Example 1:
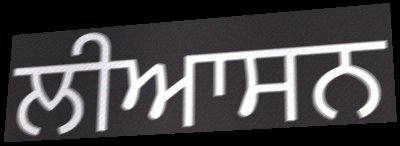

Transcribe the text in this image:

ਲੀਆਸਨ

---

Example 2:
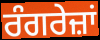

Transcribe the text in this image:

ਰੰਗਰੇਜ਼ਾਂ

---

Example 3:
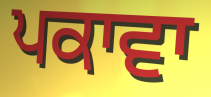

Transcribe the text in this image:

ਪਕਾਵਾ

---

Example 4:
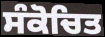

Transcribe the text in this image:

ਸੰਕੋਚਿਤ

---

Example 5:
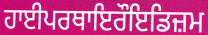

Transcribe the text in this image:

ਹਾਈਪਰਥਾਇਰੌਇਡਿਜ਼ਮ